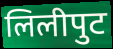
लिलीपुट